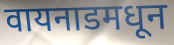
वायनाडमधून